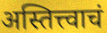
अस्तित्त्वाचं